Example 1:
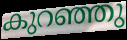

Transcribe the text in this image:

കുറഞ്ഞു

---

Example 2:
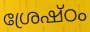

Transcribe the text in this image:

ശ്രേഷ്ഠം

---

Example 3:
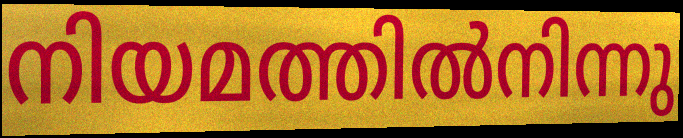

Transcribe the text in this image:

നിയമത്തിൽനിന്നു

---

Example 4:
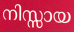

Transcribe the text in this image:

നിസ്സായ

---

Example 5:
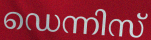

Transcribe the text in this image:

ഡെന്നിസ്